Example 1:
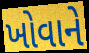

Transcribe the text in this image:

ખોવાને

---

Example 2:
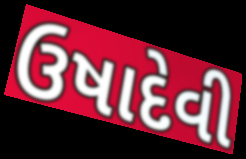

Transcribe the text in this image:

ઉષાદેવી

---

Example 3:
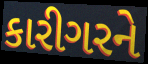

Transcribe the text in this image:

કારીગરને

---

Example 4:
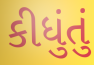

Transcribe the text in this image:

કીધુંતું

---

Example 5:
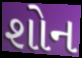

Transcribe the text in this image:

શોન